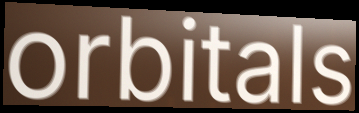
orbitals